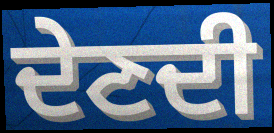
ਦੇਣਦੀ